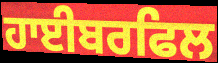
ਹਾਈਬਰਫਿਲ